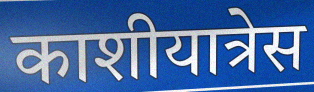
काशीयात्रेस